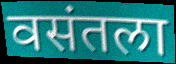
वसंतला